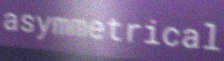
asymmetrical